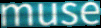
muse